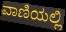
ವಾಣಿಯಲ್ಲಿ